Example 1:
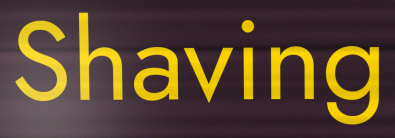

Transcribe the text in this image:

Shaving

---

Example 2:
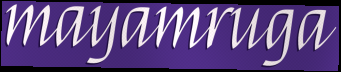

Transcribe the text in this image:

mayamruga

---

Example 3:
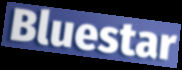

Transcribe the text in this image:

Bluestar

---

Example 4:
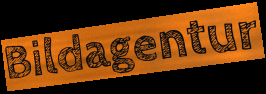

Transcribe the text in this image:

Bildagentur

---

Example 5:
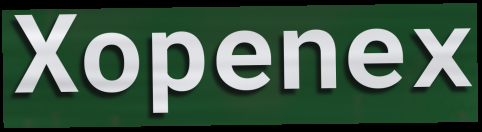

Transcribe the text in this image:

Xopenex